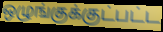
ஒழுங்குக்குட்பட்ட